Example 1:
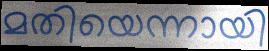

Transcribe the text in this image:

മതിയെന്നായി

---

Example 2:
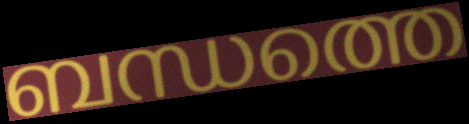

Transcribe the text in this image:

ബന്ധത്തെ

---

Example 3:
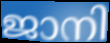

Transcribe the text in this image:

ജാനി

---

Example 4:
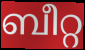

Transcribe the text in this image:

ബീറ്റ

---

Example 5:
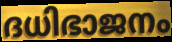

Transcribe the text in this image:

ദധിഭാജനം